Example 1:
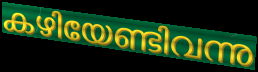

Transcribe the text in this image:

കഴിയേണ്ടിവന്നു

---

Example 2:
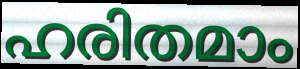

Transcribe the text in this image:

ഹരിതമാം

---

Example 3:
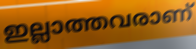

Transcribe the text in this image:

ഇല്ലാത്തവരാണ്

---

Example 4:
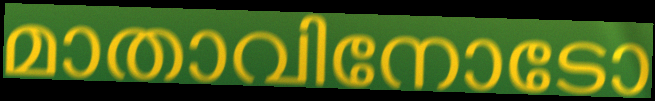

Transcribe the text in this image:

മാതാവിനോടോ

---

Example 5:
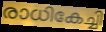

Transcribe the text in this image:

രാധികേച്ചി